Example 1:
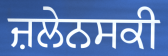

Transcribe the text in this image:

ਜ਼ਲੇਨਸਕੀ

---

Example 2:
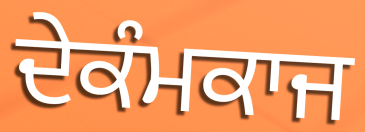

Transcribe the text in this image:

ਦੇਕੰਮਕਾਜ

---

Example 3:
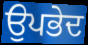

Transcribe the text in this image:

ਉਪਭੇਦ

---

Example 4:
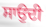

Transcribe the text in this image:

ਸਾਉਦੀ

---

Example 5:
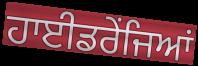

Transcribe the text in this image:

ਹਾਈਡਰੇਂਜਿਆਂ